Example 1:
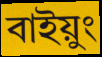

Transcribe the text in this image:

বাইয়ুং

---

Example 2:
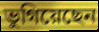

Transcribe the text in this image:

ভুগিয়েছেন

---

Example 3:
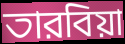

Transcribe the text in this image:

তারবিয়া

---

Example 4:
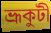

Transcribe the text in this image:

ভ্রূকুটী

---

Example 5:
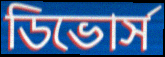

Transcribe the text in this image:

ডিভোর্স